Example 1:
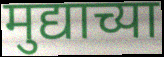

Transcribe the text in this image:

मुद्याच्या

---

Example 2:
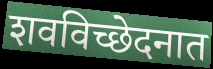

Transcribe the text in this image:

शवविच्छेदनात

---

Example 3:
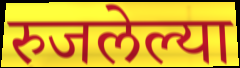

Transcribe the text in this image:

रुजलेल्या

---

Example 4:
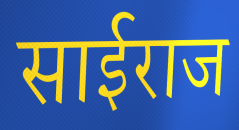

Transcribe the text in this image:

साईराज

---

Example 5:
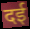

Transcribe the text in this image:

दई